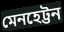
মেনহেট্টন